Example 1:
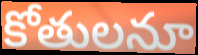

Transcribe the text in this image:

కోతులనూ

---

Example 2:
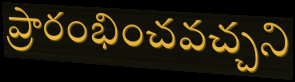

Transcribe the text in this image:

ప్రారంభించవచ్చని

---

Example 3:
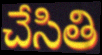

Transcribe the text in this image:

చేసితి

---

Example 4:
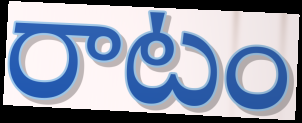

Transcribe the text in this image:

రాటం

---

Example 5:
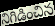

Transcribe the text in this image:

నిగిడించిన